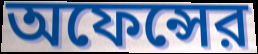
অফেন্সের